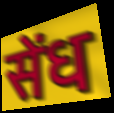
सेंध